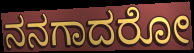
ನನಗಾದರೋ